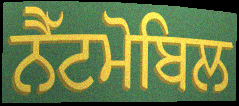
ਨੈੱਟਮੋਬਿਲ